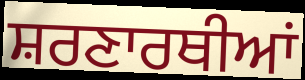
ਸ਼ਰਣਾਰਥੀਆਂ